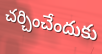
చర్చించేందుకు